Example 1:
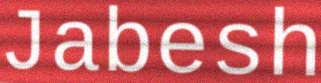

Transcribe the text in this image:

Jabesh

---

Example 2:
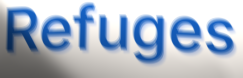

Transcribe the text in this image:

Refuges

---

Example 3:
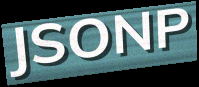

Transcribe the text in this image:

JSONP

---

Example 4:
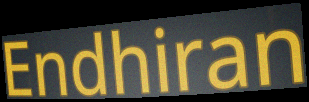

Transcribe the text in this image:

Endhiran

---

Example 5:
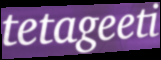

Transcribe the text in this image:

tetageeti